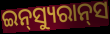
ଇନ୍‌ସ୍ୟୁରାନ୍‌ସ